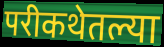
परीकथेतल्या